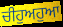
ਚੀਹੁਅਹੁਆ